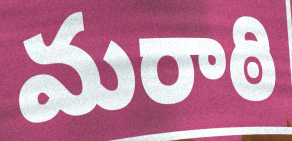
మరాఠి